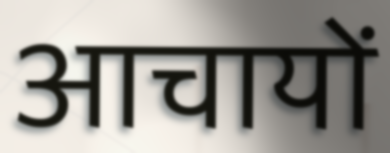
आचायों